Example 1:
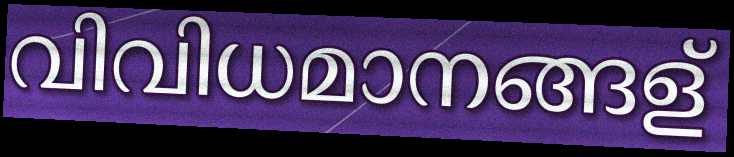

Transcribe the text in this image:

വിവിധമാനങ്ങള്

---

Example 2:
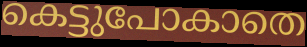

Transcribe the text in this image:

കെട്ടുപോകാതെ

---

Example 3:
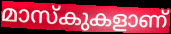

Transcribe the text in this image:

മാസ്കുകളാണ്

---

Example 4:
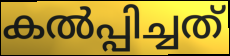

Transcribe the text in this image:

കൽപ്പിച്ചത്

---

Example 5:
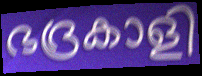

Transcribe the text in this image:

ഭദ്രകാളി